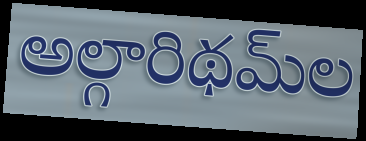
అల్గారిథమ్‌ల